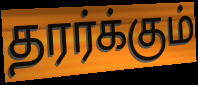
தரர்க்கும்